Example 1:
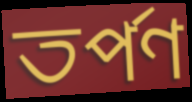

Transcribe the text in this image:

তর্পণ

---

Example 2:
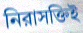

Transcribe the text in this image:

নিরাসক্তিই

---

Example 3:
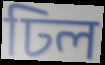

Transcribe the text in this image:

ঢিল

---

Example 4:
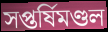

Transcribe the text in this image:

সপ্তর্ষিমণ্ডল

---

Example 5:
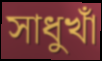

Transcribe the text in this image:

সাধুখাঁ